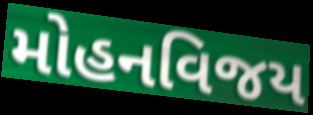
મોહનવિજય